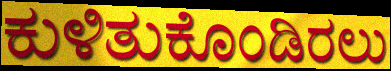
ಕುಳಿತುಕೊಂಡಿರಲು